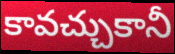
కావచ్చుకానీ